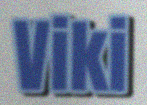
Viki